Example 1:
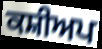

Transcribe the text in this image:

ਕਸ਼ੀਅਪ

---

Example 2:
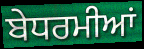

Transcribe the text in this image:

ਬੇਧਰਮੀਆਂ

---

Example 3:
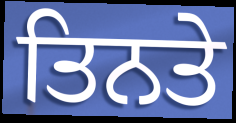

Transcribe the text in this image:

ਤਿਨਤੇ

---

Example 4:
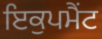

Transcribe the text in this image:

ਇਕੁਪਮੈਂਟ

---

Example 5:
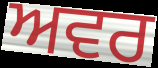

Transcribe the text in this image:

ਅਵਰ